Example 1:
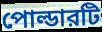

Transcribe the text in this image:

পোল্ডারটি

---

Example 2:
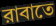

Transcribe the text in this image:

রাবাতে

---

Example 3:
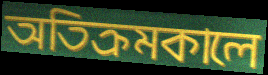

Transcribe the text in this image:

অতিক্রমকালে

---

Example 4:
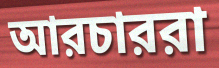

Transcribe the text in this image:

আরচাররা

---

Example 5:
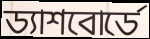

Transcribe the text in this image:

ড্যাশবোর্ডে